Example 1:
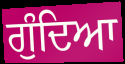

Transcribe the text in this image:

ਗੁੰਦਿਆ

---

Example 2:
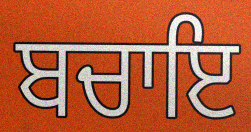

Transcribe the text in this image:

ਬਚਾਇ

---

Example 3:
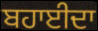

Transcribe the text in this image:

ਬਹਾਈਦਾ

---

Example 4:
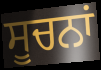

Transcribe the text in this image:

ਸੂਚਨਾਂ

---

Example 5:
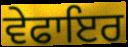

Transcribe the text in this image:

ਵੇਫਾਇਰ